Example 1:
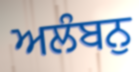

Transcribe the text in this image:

ਅਲੰਬਨੁ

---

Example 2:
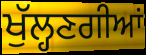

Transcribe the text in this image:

ਖੁੱਲ੍ਹਣਗੀਆਂ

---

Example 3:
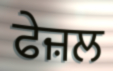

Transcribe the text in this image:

ਫੇਜ਼ਲ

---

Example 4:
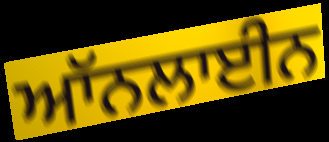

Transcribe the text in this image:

ਆੱਨਲਾਈਨ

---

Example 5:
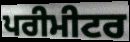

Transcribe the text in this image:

ਪਰੀਮੀਟਰ